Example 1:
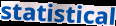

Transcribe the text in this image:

statistical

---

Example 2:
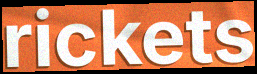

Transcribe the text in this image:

rickets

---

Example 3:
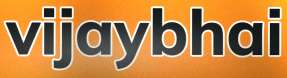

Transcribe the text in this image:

vijaybhai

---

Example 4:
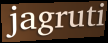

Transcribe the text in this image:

jagruti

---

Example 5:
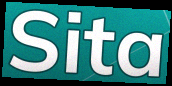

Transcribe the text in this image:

Sita